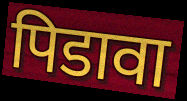
पिडावा